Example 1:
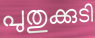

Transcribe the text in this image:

പുതുക്കുടി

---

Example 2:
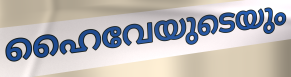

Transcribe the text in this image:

ഹൈവേയുടെയും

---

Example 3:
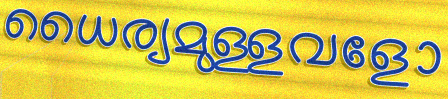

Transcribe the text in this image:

ധൈര്യമുള്ളവളോ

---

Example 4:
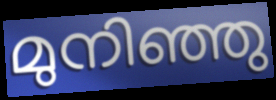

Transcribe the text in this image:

മുനിഞ്ഞു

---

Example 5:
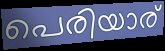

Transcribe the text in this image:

പെരിയാര്